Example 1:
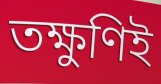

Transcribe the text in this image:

তক্ষুণিই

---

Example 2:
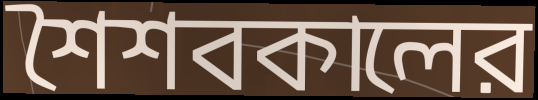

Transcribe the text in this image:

শৈশবকালের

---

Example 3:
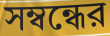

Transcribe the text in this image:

সম্বন্ধের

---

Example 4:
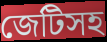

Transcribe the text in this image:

জেটিসহ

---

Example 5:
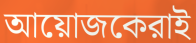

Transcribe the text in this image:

আয়োজকেরাই